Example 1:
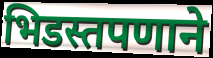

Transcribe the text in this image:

भिडस्तपणाने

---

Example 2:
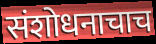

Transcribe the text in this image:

संशोधनाचाच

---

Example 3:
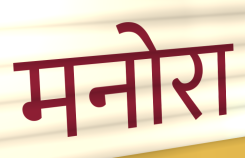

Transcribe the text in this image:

मनोरा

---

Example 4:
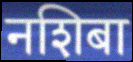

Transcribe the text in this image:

नशिबा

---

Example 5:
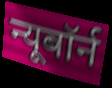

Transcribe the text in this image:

न्यूबॉर्न